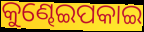
କୁଣ୍ଢେଇପକାଇ